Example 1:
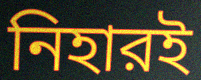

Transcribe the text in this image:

নিহারই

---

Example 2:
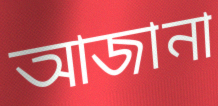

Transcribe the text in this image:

আজানা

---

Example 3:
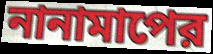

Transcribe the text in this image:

নানামাপের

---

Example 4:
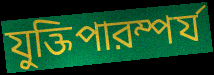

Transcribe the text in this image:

যুক্তিপারম্পর্য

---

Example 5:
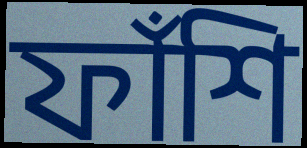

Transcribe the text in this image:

ফাঁশি